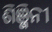
ଶିଞ୍ଜିନୀ